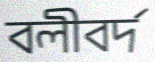
বলীবর্দ